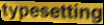
typesetting